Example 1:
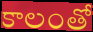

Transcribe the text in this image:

కాలంతో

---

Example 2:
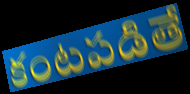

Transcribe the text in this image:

కంటపడితే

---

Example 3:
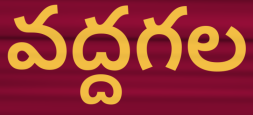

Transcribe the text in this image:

వద్దగల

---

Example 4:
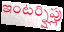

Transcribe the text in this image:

ఇంటర్న్షిప్లు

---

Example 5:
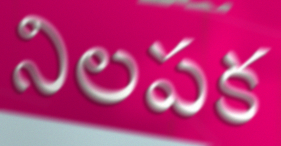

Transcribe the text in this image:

నిలపక